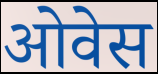
ओवेस